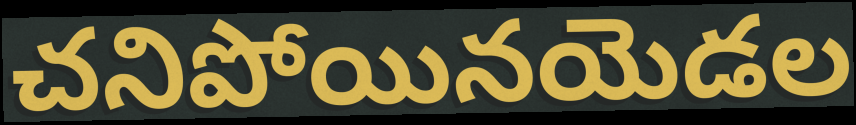
చనిపోయినయెడల